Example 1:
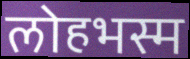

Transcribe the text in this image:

लोहभस्म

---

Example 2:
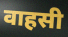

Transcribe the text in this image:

वाहसी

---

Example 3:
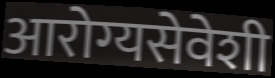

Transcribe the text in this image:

आरोग्यसेवेशी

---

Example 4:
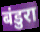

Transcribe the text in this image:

बंडुरा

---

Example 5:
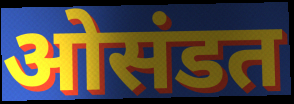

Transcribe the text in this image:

ओसंडत